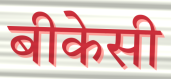
बीकेसी